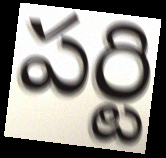
పర్టి